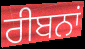
ਰੀਬਨਾਂ